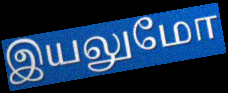
இயலுமோ